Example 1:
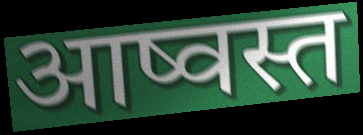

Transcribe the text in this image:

आष्वस्त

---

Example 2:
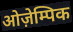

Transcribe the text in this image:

ओज़ेम्पिक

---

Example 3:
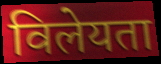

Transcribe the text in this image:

विलेयता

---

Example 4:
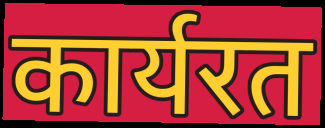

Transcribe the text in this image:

कार्यरत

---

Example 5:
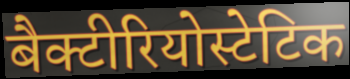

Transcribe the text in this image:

बैक्टीरियोस्टेटिक